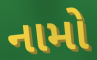
નામો